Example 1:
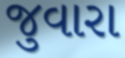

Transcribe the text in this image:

જુવારા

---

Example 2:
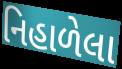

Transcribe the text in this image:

નિહાળેલા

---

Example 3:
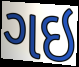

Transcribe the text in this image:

ગઇ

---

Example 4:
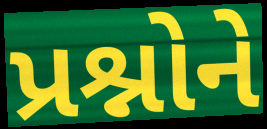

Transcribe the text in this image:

પ્રશ્નોને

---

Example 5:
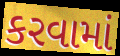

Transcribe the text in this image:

કરવામાં